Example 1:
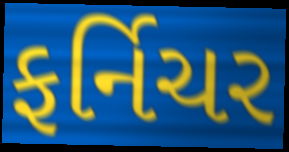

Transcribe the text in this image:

ફર્નિચર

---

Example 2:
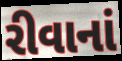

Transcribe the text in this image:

રીવાનાં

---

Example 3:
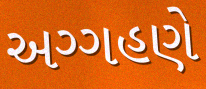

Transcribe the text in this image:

અગ્ગહણે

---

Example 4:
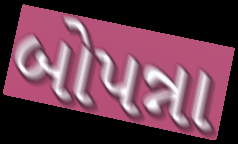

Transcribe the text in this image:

બોપન્ના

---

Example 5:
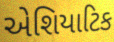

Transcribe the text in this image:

એશિયાટિક